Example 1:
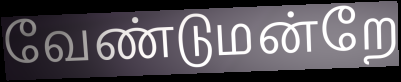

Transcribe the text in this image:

வேண்டுமன்றே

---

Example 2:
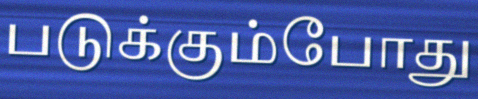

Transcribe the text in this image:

படுக்கும்போது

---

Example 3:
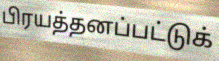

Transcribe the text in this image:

பிரயத்தனப்பட்டுக்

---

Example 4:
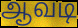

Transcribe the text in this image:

ஆவடி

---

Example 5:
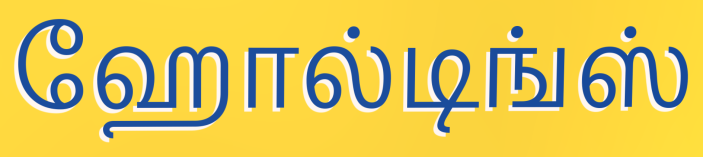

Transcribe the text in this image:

ஹோல்டிங்ஸ்